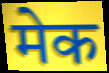
मेक